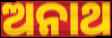
ଅନାଥ